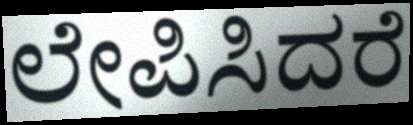
ಲೇಪಿಸಿದರೆ